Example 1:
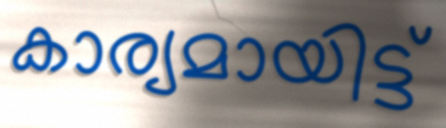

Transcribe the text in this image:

കാര്യമായിട്ട്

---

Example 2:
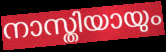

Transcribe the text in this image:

നാസ്തിയായും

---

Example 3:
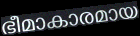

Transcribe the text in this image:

ഭീമാകാരമായ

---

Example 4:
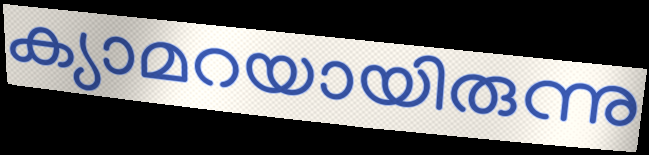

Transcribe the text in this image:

ക്യാമറയായിരുന്നു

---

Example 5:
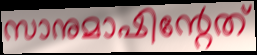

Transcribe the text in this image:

സാനുമാഷിന്റേത്